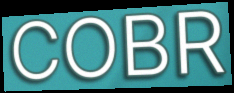
COBR